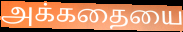
அக்கதையை